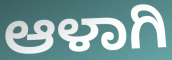
ಆಳಾಗಿ